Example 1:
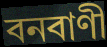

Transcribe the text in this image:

বনবাণী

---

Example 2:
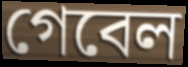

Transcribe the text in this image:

গেবেল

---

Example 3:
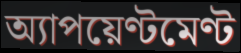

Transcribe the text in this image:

অ্যাপয়েণ্টমেণ্ট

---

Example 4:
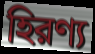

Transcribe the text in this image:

হিরণ্য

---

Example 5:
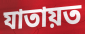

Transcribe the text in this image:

যাতায়ত